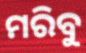
ମରିବୁ